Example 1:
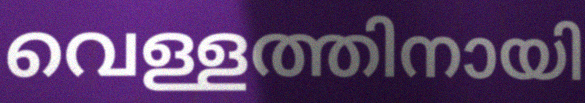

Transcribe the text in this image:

വെള്ളത്തിനായി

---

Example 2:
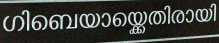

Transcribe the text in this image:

ഗിബെയായ്ക്കെതിരായി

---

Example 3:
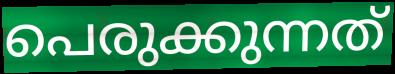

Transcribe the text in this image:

പെരുക്കുന്നത്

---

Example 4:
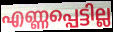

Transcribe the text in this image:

എണ്ണപ്പെട്ടില്ല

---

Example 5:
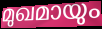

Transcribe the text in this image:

മുഖമായും